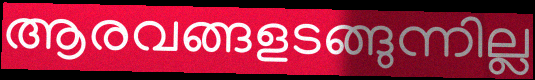
ആരവങ്ങളടങ്ങുന്നില്ല